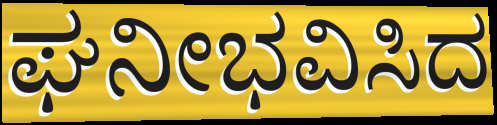
ಘನೀಭವಿಸಿದ